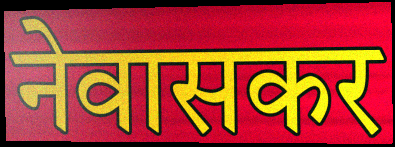
नेवासकर